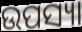
ଉପସ୍ୟା